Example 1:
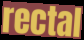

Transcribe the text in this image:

rectal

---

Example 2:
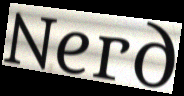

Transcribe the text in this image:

Nerd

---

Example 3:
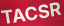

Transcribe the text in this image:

TACSR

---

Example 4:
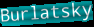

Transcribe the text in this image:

Burlatsky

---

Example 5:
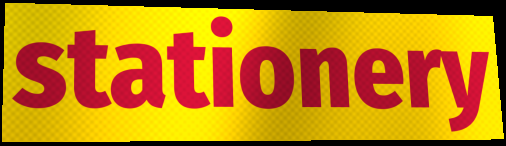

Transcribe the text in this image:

stationery